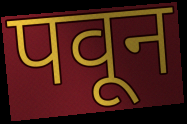
पवून